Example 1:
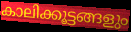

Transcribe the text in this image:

കാലിക്കൂട്ടങ്ങളും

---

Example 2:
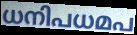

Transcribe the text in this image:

ധനിപധമപ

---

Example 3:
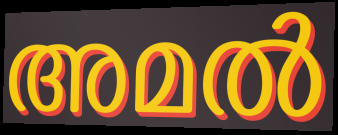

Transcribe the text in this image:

അമൽ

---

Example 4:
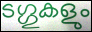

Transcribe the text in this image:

ടഗ്ഗുകളും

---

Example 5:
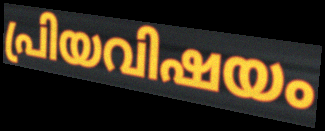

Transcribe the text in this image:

പ്രിയവിഷയം